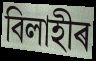
বিলাহীৰ